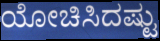
ಯೋಚಿಸಿದಷ್ಟು